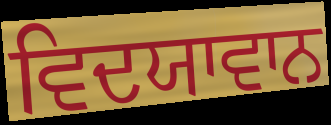
ਵਿਦਯਾਵਾਨ